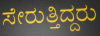
ಸೇರುತ್ತಿದ್ದರು